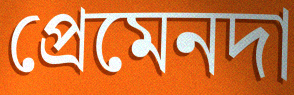
প্রেমেনদা